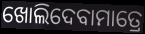
ଖୋଲିଦେବାମାତ୍ରେ